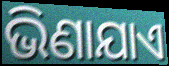
ଭିଣାଯାଏ